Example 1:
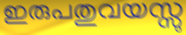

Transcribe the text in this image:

ഇരുപതുവയസ്സു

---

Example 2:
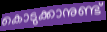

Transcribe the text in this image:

കൊടുക്കാനുണ്ട്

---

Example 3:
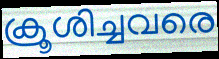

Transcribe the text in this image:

ക്രൂശിച്ചവരെ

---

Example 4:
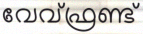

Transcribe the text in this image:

വേവ്ഫ്രണ്ട്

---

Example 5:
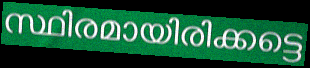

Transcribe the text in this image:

സ്ഥിരമായിരിക്കട്ടെ